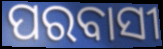
ପରବାସୀ